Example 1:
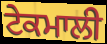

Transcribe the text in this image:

ਟੇਕਮਾਲੀ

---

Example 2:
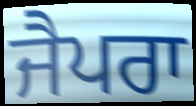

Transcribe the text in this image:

ਜੈਪਰਾ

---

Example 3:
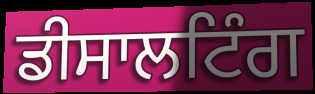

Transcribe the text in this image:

ਡੀਸਾਲਟਿੰਗ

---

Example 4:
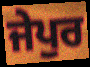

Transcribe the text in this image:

ਜੇਪੁਰ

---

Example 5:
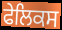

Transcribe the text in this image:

ਫੇਲਿਕਸ